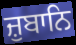
ਜ਼ੁਬਾਨਿ